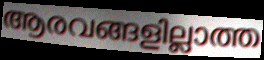
ആരവങ്ങളില്ലാത്ത